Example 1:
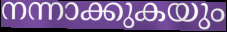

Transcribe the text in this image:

നന്നാക്കുകയും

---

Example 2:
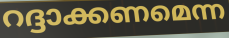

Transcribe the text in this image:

റദ്ദാക്കണമെന്ന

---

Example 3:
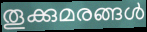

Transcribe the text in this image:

തൂക്കുമരങ്ങൾ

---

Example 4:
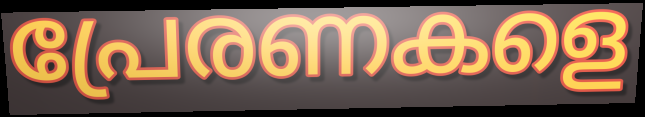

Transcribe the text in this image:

പ്രേരണകളെ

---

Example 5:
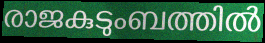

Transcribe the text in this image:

രാജകുടുംബത്തിൽ